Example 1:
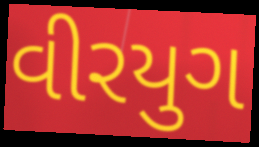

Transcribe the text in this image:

વીરયુગ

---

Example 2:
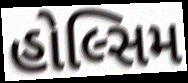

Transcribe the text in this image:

હોલ્સિમ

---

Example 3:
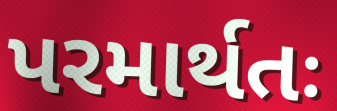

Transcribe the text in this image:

પરમાર્થતઃ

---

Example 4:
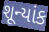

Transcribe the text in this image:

શૂન્યાંક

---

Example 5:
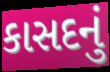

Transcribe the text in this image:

કાસદનું